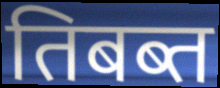
तिबब्त